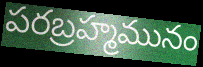
పరబ్రహ్మమునం